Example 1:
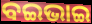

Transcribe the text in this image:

ବଇଭାଇ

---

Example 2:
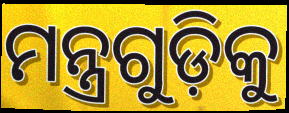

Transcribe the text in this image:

ମନ୍ତ୍ରଗୁଡ଼ିକୁ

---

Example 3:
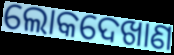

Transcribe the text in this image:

ଲୋକଦେଖାଣ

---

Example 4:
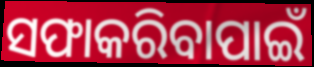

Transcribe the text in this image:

ସଫାକରିବାପାଇଁ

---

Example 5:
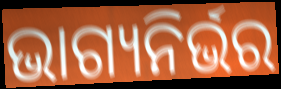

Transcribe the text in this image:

ଭାଗ୍ୟନିର୍ଭର